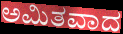
ಅಮಿತವಾದ